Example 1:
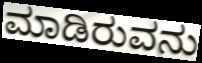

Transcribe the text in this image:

ಮಾಡಿರುವನು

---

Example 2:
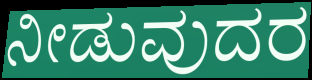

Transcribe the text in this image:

ನೀಡುವುದರ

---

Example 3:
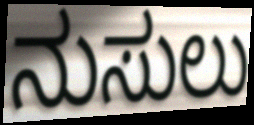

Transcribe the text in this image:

ನುಸುಲು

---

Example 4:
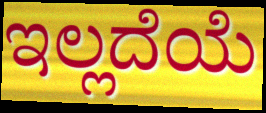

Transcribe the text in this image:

ಇಲ್ಲದೆಯೆ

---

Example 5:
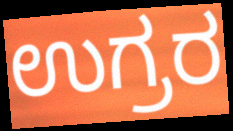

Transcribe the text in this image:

ಉಗ್ರರ